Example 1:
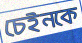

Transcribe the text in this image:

চেইনকে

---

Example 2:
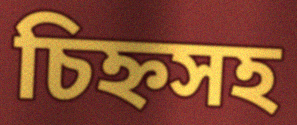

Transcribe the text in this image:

চিহ্নসহ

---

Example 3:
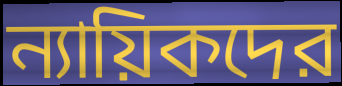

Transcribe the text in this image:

ন্যায়িকদের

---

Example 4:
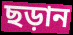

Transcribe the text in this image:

ছড়ান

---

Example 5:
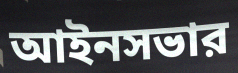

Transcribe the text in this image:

আইনসভার